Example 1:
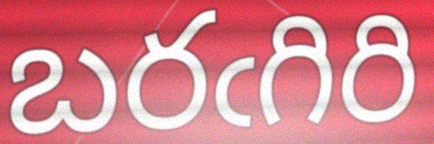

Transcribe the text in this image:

బరఁగిరి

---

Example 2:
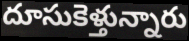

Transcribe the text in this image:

దూసుకెళ్తున్నారు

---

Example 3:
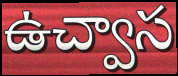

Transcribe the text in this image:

ఉచ్వాస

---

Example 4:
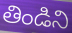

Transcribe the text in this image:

తిండిని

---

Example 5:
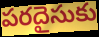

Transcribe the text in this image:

పరదైసుకు